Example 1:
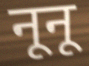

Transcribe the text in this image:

नूनू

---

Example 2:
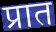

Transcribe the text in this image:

प्रात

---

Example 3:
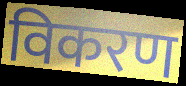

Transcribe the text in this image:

विकरण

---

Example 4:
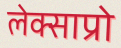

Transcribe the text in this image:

लेक्साप्रो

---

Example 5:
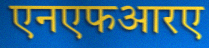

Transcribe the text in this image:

एनएफआरए